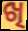
ଖି